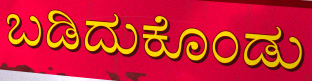
ಬಡಿದುಕೊಂಡು